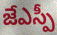
జేఎస్పీ